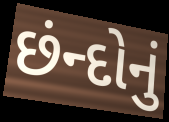
છંન્દોનું